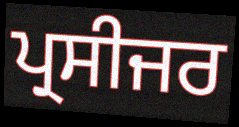
ਪ੍ਰਸੀਜਰ